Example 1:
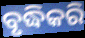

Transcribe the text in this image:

ବୃଦ୍ଧିକରି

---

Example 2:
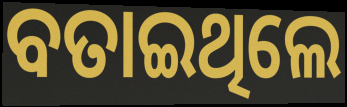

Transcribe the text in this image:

ବତାଇଥିଲେ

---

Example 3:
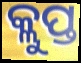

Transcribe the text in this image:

କ୍ଲୁପ୍ତ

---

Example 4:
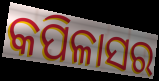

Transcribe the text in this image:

କପିଳାସର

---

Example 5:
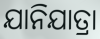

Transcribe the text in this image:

ଯାନିଯାତ୍ରା